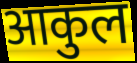
आकुल